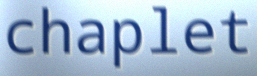
chaplet